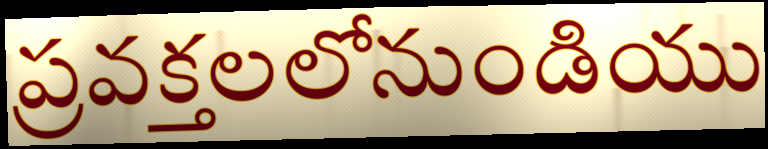
ప్రవక్తలలోనుండియు